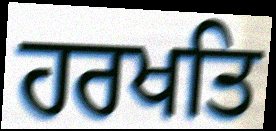
ਹਰਖਤਿ